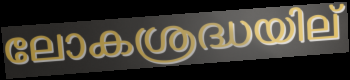
ലോകശ്രദ്ധയില്